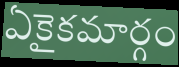
ఏకైకమార్గం